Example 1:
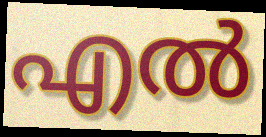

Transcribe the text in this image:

എൽ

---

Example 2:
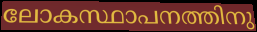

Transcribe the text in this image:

ലോകസ്ഥാപനത്തിനു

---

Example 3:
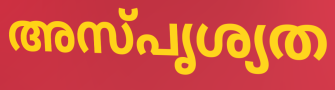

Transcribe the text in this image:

അസ്പൃശ്യത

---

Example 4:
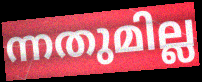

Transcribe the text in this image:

ന്നതുമില്ല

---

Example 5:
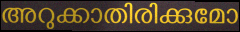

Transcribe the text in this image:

അറുക്കാതിരിക്കുമോ